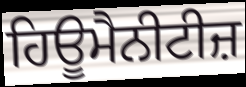
ਹਿਊਮੈਨੀਟੀਜ਼